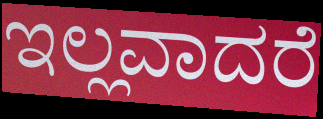
ಇಲ್ಲವಾದರೆ